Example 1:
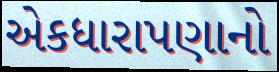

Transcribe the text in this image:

એકધારાપણાનો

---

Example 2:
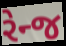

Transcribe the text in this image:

રેન્જ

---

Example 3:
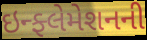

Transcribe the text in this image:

ઇન્ફ્લેમેશનની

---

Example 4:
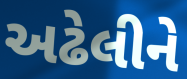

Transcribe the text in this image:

અઢેલીને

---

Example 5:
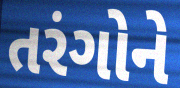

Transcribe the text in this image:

તરંગોને